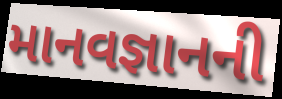
માનવજ્ઞાનની